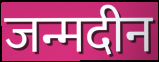
जन्मदीन